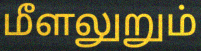
மீளலுறும்